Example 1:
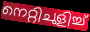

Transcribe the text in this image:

നെറ്റിചുളിച്ച്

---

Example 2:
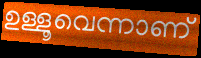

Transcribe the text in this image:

ഉള്ളൂവെന്നാണ്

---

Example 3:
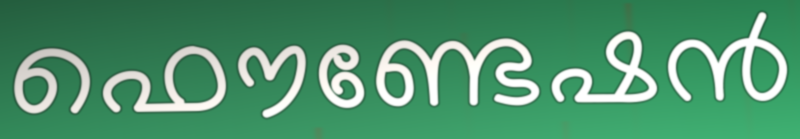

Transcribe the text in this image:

ഫൌണ്ടേഷൻ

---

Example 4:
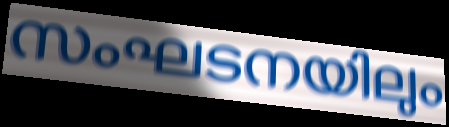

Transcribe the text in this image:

സംഘടനയിലും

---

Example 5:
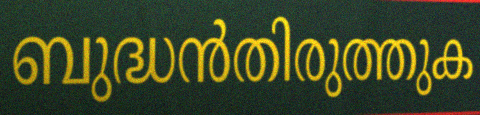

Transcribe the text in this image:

ബുദ്ധൻതിരുത്തുക